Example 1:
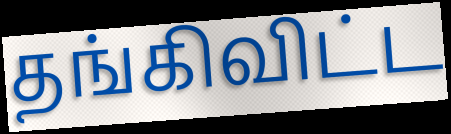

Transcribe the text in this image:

தங்கிவிட்ட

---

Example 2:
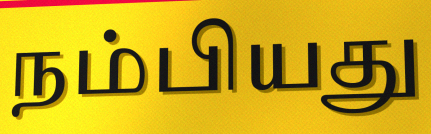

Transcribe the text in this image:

நம்பியது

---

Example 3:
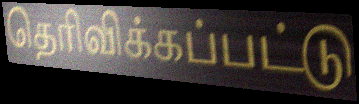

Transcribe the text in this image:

தெரிவிக்கப்பட்டு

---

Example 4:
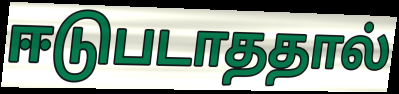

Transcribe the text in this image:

ஈடுபடாததால்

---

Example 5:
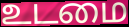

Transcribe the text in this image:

உடமை